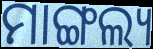
ମାଙ୍ଗଲ୍ୟ